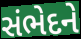
સંભેદને